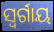
ସ୍ବର୍ଗାୟ